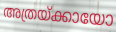
അത്രയ്ക്കായോ